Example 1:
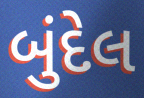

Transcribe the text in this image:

બુંદેલ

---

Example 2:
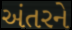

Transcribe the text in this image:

અંતરને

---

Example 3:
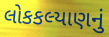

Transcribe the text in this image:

લોકકલ્યાણનું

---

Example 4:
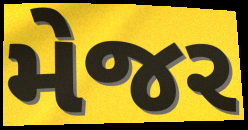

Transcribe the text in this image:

મેજર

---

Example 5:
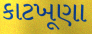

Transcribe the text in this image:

કાટખૂણા